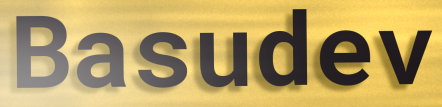
Basudev